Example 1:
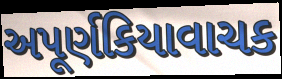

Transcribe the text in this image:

અપૂર્ણકિયાવાચક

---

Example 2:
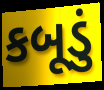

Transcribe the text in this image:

કબૂડું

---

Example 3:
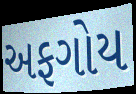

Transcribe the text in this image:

અફગોય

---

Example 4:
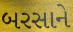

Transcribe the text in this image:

બરસાને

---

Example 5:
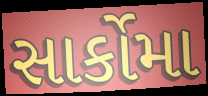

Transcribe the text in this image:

સાર્કોમા